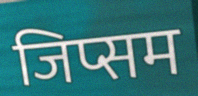
जिप्सम